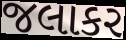
જલાકર